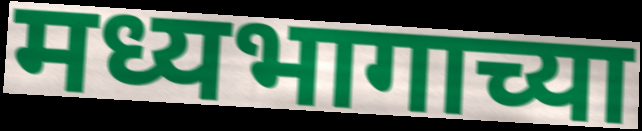
मध्यभागाच्या